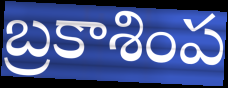
బ్రకాశింప